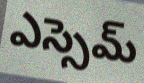
ఎస్సెమ్